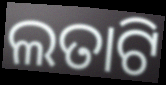
ଲତାଟି